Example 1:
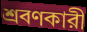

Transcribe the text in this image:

শ্রবণকারী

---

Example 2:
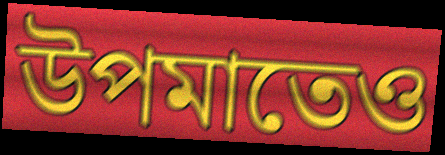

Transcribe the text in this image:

উপমাতেও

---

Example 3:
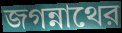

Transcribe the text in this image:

জগন্নাথের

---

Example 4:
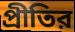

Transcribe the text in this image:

প্রীতির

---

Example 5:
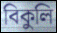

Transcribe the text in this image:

বিকুলি